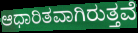
ಆಧಾರಿತವಾಗಿರುತ್ತವೆ